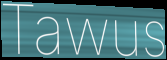
Tawus